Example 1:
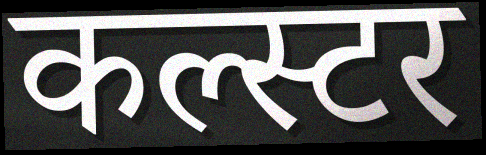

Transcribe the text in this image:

कल्स्टर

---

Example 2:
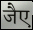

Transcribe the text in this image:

जैए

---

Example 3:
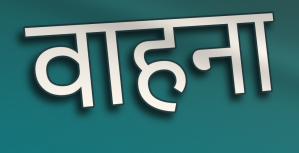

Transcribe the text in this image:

वाहना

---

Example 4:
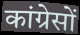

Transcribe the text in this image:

कांग्रेसों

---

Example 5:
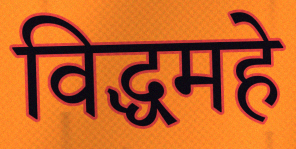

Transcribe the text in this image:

विद्धमहे